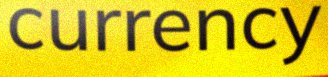
currency